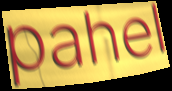
pahel